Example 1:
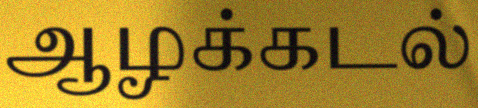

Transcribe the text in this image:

ஆழக்கடல்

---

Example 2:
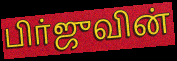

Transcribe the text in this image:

பிர்ஜுவின்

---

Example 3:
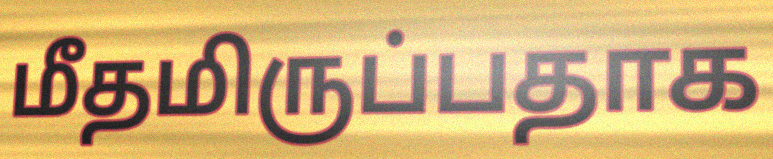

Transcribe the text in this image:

மீதமிருப்பதாக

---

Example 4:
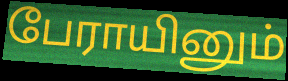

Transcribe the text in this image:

பேராயினும்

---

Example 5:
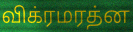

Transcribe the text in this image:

விக்ரமரத்ன